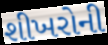
શીખરોની